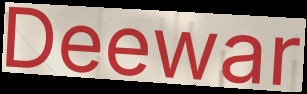
Deewar